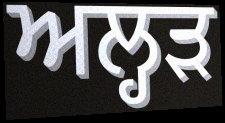
ਅਲ੍ਹੜ